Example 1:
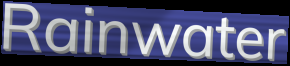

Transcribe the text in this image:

Rainwater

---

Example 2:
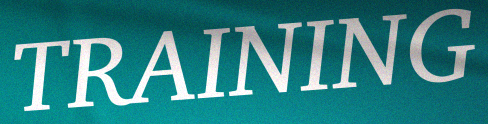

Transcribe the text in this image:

TRAINING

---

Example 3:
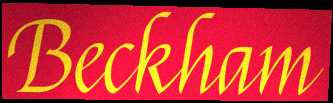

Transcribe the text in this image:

Beckham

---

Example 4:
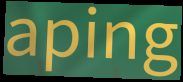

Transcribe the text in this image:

aping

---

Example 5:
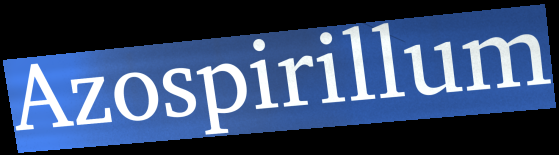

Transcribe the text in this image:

Azospirillum